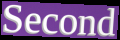
Second